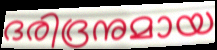
ദരിദ്രനുമായ